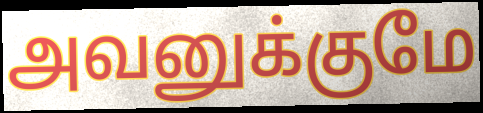
அவனுக்குமே